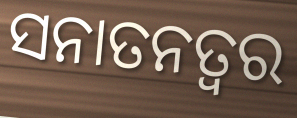
ସନାତନତ୍ୱର